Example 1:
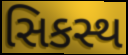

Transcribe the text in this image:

સિકસ્થ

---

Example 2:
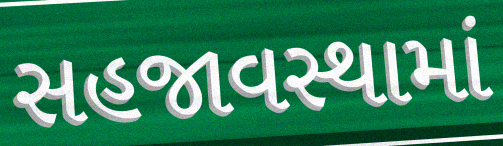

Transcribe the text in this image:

સહજાવસ્થામાં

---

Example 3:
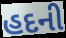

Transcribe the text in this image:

હદની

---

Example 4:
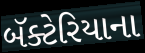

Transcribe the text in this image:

બૅક્ટેરિયાના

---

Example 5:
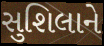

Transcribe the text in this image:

સુશિલાને